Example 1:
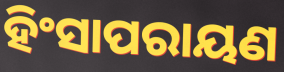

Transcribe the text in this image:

ହିଂସାପରାୟଣ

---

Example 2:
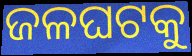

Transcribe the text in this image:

ଜଳଘଟକୁ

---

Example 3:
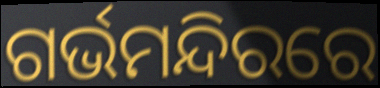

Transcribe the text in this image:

ଗର୍ଭମନ୍ଦିରରେ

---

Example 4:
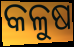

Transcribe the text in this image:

କଳୁଷ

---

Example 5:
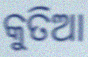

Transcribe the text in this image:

କୁତିଆ